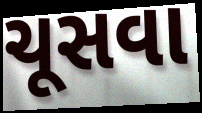
ચૂસવા